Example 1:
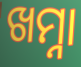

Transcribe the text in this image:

ଖମ୍ନା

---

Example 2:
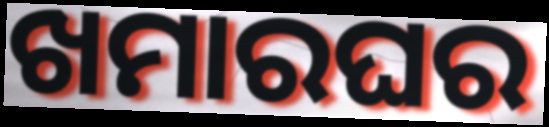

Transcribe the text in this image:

ଖମାରଘର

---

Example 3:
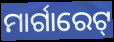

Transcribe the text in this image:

ମାର୍ଗାରେଟ୍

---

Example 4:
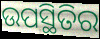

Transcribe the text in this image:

ଉପସ୍ଥିତିର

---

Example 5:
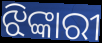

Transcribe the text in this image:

ଝିଙ୍କାରୀ